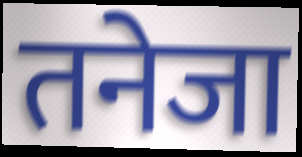
तनेजा